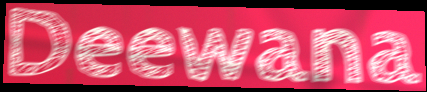
Deewana